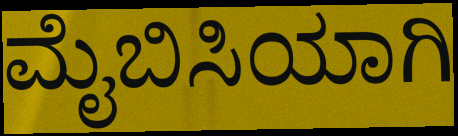
ಮೈಬಿಸಿಯಾಗಿ